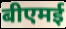
बीएमई